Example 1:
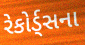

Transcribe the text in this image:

રેકોર્ડ્સના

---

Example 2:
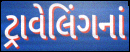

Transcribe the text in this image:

ટ્રાવેલિંગનાં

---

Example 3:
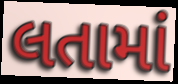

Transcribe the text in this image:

લતામાં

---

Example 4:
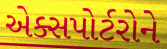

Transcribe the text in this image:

એક્સપોર્ટરોને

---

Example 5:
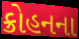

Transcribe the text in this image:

ક્રોહનના